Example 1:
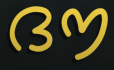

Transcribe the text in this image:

ദൗ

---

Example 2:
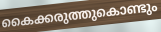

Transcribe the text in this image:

കൈക്കരുത്തുകൊണ്ടും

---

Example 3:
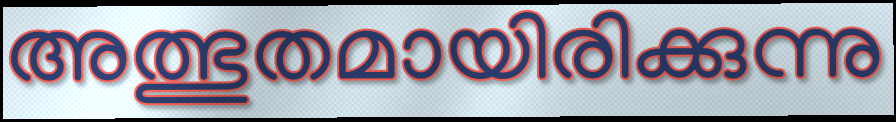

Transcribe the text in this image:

അത്ഭുതമായിരിക്കുന്നു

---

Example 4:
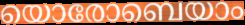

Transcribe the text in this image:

യൊരോബെയാം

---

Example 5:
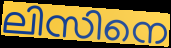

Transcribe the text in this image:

ലിസിനെ